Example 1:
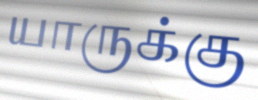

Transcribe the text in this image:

யாருக்கு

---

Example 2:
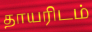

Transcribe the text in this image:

தாயரிடம்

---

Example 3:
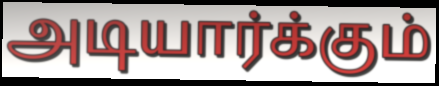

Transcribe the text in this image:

அடியார்க்கும்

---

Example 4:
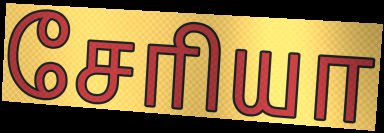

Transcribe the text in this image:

சேரியா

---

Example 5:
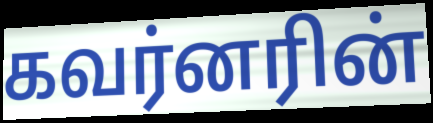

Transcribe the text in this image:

கவர்னரின்